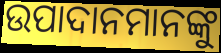
ଉପାଦାନମାନଙ୍କୁ